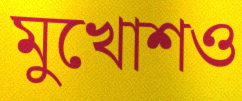
মুখোশও